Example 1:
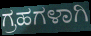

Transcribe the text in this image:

ಗ್ರಹಗಳಾಗಿ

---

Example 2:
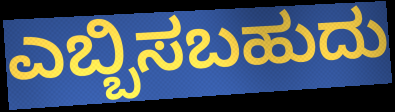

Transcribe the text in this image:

ಎಬ್ಬಿಸಬಹುದು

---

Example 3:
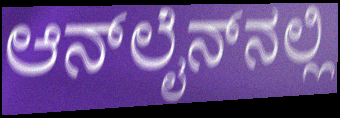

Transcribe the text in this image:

ಆನ್‌ಲೈನ್‌ನಲ್ಲಿ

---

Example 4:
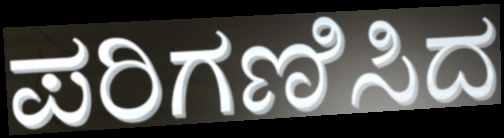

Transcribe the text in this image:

ಪರಿಗಣಿಸಿದ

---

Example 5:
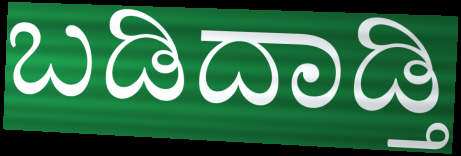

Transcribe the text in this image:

ಬಡಿದಾಡ್ತಿ